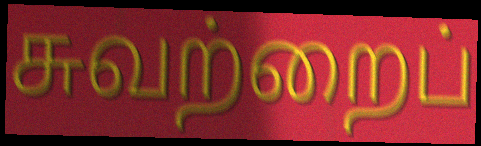
சுவற்றைப்